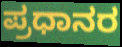
ಪ್ರಧಾನರ